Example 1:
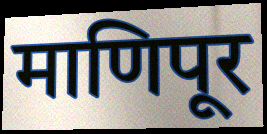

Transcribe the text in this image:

माणिपूर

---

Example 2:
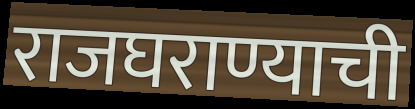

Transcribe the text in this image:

राजघराण्याची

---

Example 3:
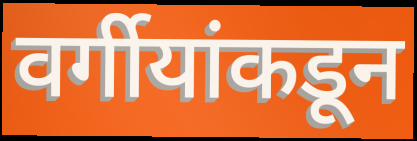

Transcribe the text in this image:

वर्गीयांकडून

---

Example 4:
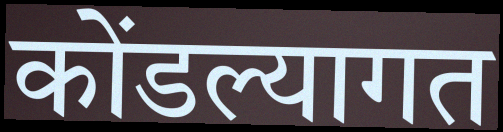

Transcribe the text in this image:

कोंडल्यागत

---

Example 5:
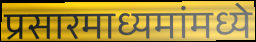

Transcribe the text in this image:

प्रसारमाध्यमांमध्ये